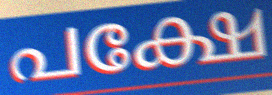
പക്ഷേ